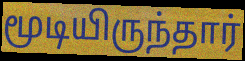
மூடியிருந்தார்